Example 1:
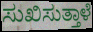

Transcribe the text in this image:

ಸುಖಿಸುತ್ತಾಳೆ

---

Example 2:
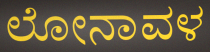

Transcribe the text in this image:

ಲೋನಾವಳ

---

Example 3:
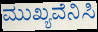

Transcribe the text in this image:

ಮುಖ್ಯವೆನಿಸಿ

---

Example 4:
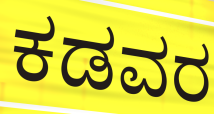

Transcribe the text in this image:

ಕಡವರ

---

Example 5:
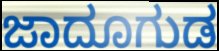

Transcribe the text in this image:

ಜಾದೂಗುಡ